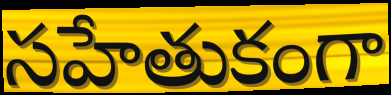
సహేతుకంగా